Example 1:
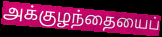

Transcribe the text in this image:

அக்குழந்தையைப்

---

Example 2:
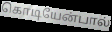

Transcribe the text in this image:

கொடியேன்பால்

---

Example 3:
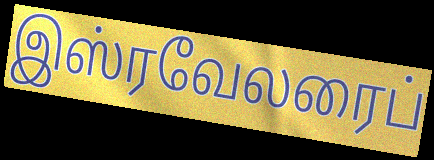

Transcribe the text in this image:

இஸ்ரவேலரைப்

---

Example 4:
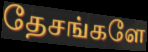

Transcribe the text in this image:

தேசங்களே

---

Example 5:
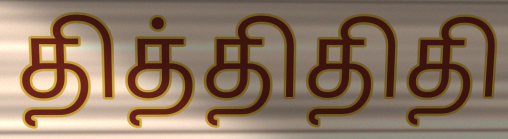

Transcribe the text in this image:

தித்திதிதி